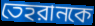
তেহরানকে